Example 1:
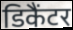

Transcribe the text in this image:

डिकैंटर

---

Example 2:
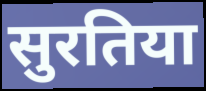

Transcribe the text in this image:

सुरतिया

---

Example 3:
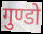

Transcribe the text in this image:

गुण्डो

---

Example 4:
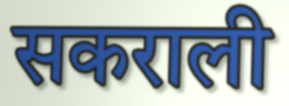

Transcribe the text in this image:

सकराली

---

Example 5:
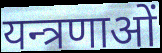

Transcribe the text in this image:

यन्त्रणाओं